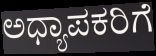
ಅಧ್ಯಾಪಕರಿಗೆ